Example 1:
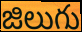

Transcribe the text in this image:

జిలుగు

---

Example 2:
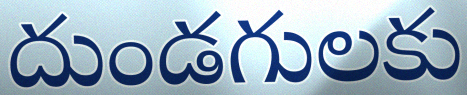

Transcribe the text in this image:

దుండగులకు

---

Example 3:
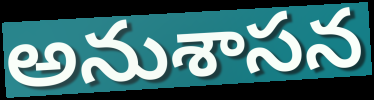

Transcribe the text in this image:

అనుశాసన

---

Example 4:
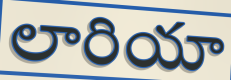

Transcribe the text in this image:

లారియా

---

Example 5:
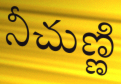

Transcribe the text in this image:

నీచుణ్ణి